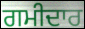
ਗਮੀਦਾਰ